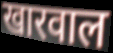
खारवाल